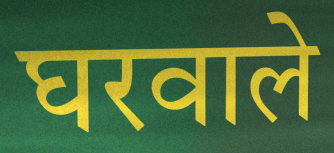
घरवाले